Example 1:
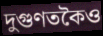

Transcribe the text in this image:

দুগুণতকৈও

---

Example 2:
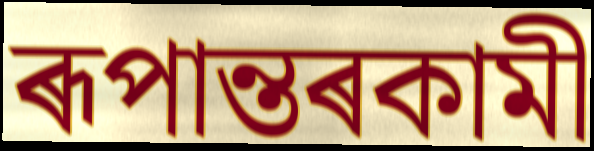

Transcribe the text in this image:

ৰূপান্তৰকামী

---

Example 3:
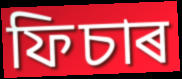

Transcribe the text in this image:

ফিচাৰ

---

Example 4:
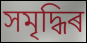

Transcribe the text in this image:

সমৃদ্ধিৰ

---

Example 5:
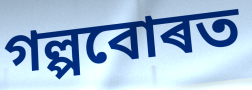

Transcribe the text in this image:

গল্পবোৰত